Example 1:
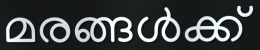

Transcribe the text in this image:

മരങ്ങൾക്ക്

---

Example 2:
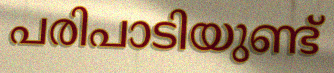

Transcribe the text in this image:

പരിപാടിയുണ്ട്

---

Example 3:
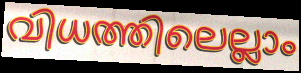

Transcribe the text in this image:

വിധത്തിലെല്ലാം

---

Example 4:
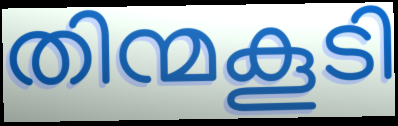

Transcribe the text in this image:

തിന്മകൂടി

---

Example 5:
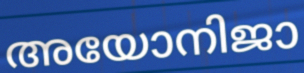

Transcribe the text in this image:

അയോനിജാ